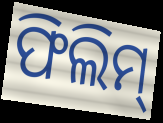
ଫିଲିମ୍